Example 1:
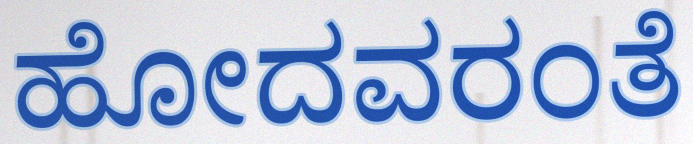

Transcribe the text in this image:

ಹೋದವರಂತೆ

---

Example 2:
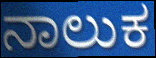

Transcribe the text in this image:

ನಾಲುಕ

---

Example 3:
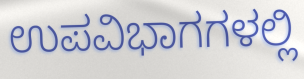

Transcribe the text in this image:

ಉಪವಿಭಾಗಗಳಲ್ಲಿ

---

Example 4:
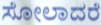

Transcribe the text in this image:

ಸೋಲಾದರೆ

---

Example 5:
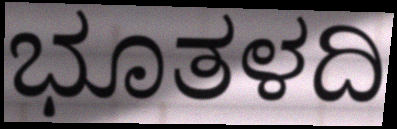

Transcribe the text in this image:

ಭೂತಳದಿ